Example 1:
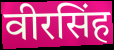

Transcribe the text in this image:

वीरसिंह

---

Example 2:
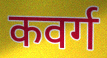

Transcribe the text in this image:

कवर्ग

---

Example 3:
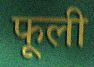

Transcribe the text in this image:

फूली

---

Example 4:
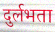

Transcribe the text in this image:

दुर्लभता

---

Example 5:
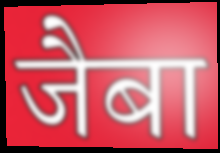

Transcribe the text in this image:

जैबा